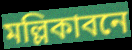
মল্লিকাবনে